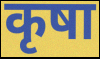
कृषा